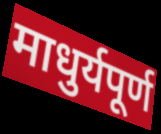
माधुर्यपूर्ण